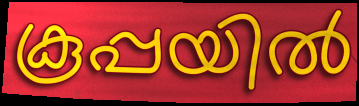
കൂപ്പയിൽ